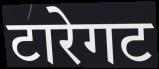
टारेगट